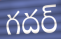
గదర్